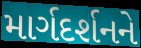
માર્ગદર્શનને